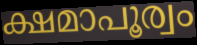
ക്ഷമാപൂര്വം